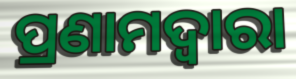
ପ୍ରଣାମଦ୍ୱାରା